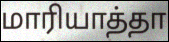
மாரியாத்தா